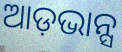
ଆଡ଼ଭାନ୍ସ